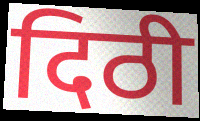
दिठी